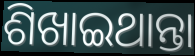
ଶିଖାଇଥାନ୍ତା